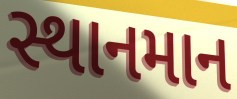
સ્થાનમાન